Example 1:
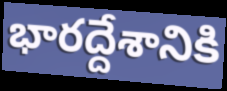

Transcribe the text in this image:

భారద్దేశానికి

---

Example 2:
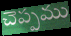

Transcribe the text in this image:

చెప్పము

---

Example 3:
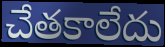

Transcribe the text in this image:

చేతకాలేదు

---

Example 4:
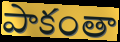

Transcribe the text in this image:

పాకంతా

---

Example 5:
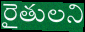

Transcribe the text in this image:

రైతులని